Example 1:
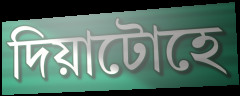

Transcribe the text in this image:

দিয়াটোহে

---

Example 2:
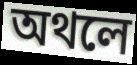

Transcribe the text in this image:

অথলে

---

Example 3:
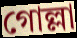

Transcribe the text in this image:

গোল্লা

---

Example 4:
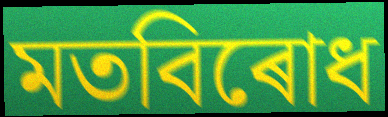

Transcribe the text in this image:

মতবিৰোধ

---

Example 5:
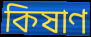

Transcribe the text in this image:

কিষাণ